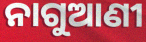
ନାଗୁଆଣୀ